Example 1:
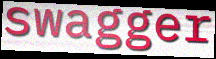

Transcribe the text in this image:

swagger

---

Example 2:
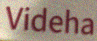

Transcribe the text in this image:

Videha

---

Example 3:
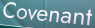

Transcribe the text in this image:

Covenant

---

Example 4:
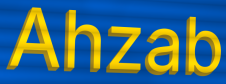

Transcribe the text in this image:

Ahzab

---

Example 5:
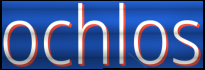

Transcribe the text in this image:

ochlos